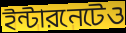
ইন্টারনেটেও